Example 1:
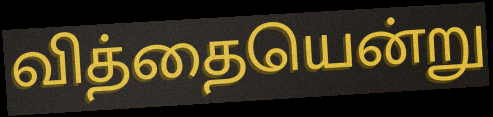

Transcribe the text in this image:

வித்தையென்று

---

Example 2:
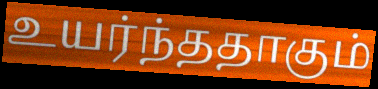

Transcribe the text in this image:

உயர்ந்ததாகும்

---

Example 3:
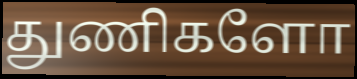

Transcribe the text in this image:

துணிகளோ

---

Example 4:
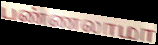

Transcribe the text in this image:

பண்ணலாமா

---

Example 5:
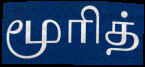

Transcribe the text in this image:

மூரித்